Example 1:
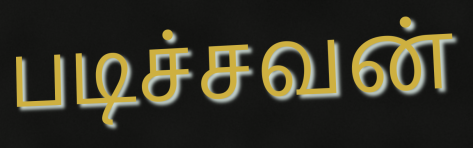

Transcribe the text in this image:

படிச்சவன்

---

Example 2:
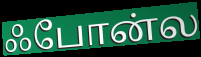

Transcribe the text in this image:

ஃபோன்ல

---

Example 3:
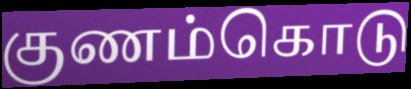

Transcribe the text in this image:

குணம்கொடு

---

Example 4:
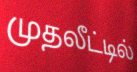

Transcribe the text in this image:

முதலீட்டில்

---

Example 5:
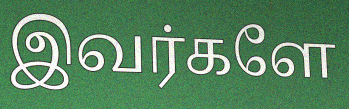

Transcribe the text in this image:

இவர்களே